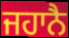
ਜਹਾਨੈ